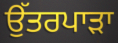
ਉੱਤਰਪਾੜਾ